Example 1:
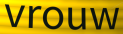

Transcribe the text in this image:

vrouw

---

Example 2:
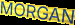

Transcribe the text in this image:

MORGAN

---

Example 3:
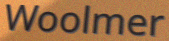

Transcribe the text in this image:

Woolmer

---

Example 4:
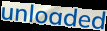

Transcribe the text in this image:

unloaded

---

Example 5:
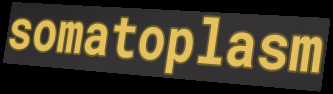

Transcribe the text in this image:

somatoplasm